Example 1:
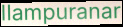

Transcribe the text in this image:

Ilampuranar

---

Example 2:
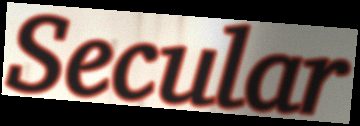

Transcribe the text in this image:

Secular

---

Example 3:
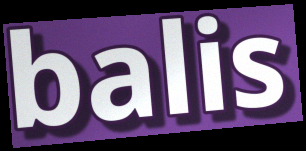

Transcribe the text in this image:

balis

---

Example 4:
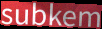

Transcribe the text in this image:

subkem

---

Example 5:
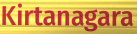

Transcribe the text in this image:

Kirtanagara